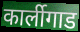
कार्लीगाड